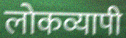
लोकव्यापी